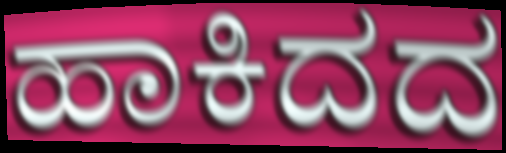
ಹಾಕಿದದ